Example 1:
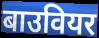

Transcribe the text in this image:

बाउवियर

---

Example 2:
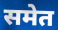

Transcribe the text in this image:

समेत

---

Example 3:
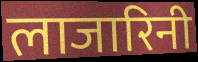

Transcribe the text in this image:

लाजारिनी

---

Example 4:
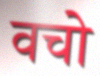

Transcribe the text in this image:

वचो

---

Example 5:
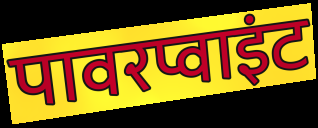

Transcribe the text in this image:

पावरप्वाइंट